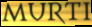
MURTI